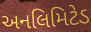
અનલિમિટેડ